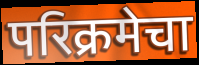
परिक्रमेचा